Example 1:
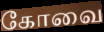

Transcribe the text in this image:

கோவை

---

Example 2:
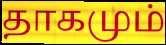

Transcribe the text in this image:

தாகமும்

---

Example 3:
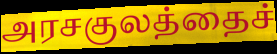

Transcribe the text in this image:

அரசகுலத்தைச்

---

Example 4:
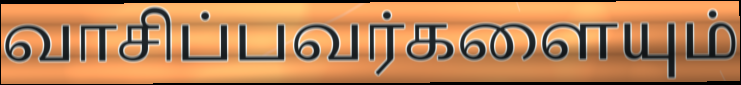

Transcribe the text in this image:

வாசிப்பவர்களையும்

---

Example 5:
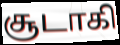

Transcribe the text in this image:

சூடாகி